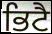
ਭਿਟੈ